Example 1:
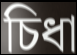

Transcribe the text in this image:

চিধা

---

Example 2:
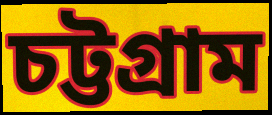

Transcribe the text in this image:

চট্টগ্ৰাম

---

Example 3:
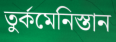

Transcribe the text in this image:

তুৰ্কমেনিস্তান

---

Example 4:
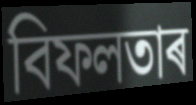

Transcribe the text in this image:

বিফলতাৰ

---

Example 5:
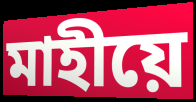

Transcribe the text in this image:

মাহীয়ে